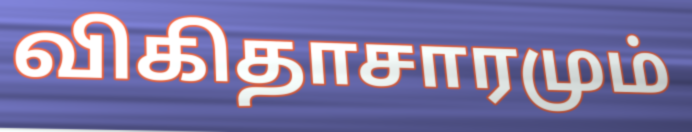
விகிதாசாரமும்